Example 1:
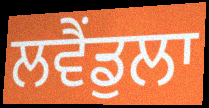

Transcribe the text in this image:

ਲਵੈਂਡੁਲਾ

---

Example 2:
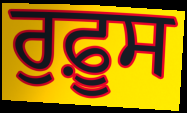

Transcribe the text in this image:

ਰੁਫ਼ੂਸ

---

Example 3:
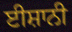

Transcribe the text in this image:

ਈਸ਼ਾਨੀ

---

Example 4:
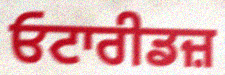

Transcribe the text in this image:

ਓਟਾਰੀਡਜ਼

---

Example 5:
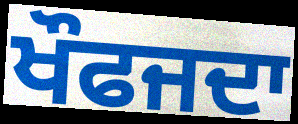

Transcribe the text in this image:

ਖੌਫਜਦਾ